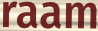
raam